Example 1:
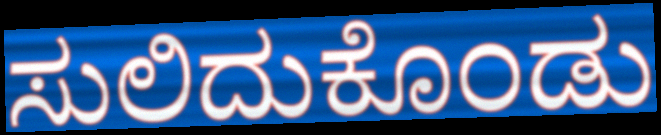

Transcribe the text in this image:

ಸುಲಿದುಕೊಂಡು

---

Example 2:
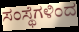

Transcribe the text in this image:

ಸಂಸ್ಥೆಗಳಿಂದ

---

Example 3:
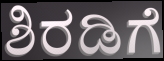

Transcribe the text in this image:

ಶಿರಡಿಗೆ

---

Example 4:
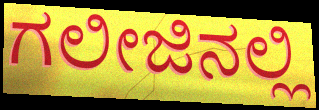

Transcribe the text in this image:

ಗಲೀಜಿನಲ್ಲಿ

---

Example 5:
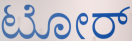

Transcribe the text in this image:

ಟೋರ್